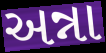
અન્ના